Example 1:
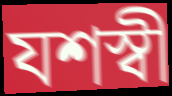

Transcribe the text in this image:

যশস্বী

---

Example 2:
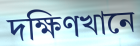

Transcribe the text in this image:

দক্ষিণখানে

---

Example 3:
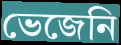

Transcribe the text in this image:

ভেজেনি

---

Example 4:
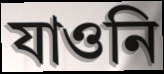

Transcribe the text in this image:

যাওনি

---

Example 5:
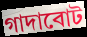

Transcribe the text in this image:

গাদাবোট